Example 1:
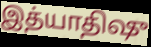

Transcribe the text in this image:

இத்யாதிஷு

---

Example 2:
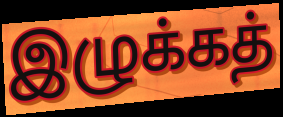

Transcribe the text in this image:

இழுக்கத்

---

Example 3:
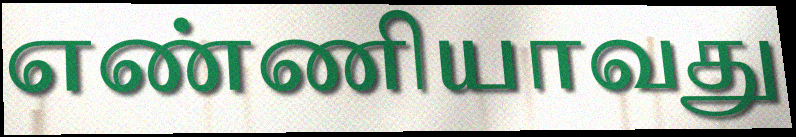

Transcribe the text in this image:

எண்ணியாவது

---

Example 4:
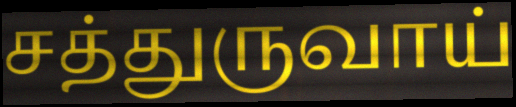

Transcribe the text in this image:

சத்துருவாய்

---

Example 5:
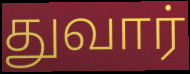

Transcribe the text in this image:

துவார்